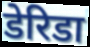
डेरिडा